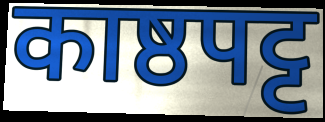
काष्ठपट्ट